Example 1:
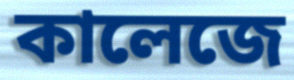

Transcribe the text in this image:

কালেজে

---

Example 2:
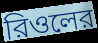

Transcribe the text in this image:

রিওলের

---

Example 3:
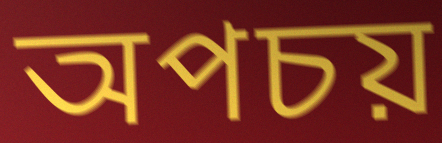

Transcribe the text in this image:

অপচয়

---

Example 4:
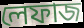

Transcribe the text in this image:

লেফাজ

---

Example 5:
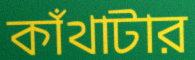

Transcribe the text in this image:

কাঁথাটার